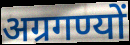
अग्रगण्यों